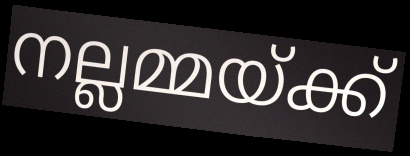
നല്ലമ്മയ്ക്ക്